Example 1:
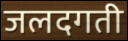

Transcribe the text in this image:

जलदगती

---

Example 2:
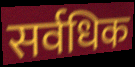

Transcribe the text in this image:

सर्वधिक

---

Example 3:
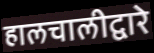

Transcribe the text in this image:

हालचालीद्वारे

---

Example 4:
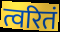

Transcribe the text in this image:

त्वरितं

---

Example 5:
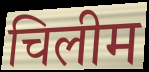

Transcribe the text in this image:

चिलीम